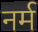
नर्म